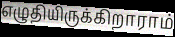
எழுதியிருக்கிறாராம்